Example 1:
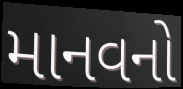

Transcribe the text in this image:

માનવનો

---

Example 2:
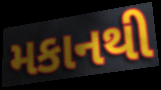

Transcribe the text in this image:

મકાનથી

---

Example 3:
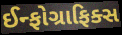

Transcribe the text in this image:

ઈન્ફોગ્રાફિક્સ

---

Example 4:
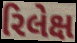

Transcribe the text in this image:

રિલેક્ષ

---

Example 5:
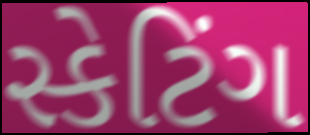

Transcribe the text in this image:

સ્કેટિંગ